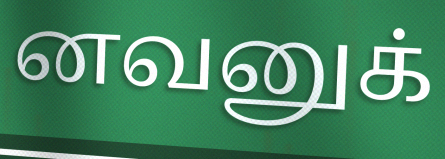
னவனுக்